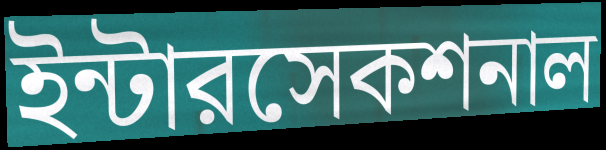
ইন্টারসেকশনাল